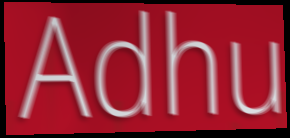
Adhu